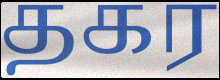
தகர